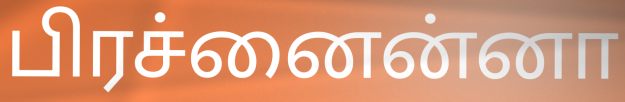
பிரச்னைன்னா